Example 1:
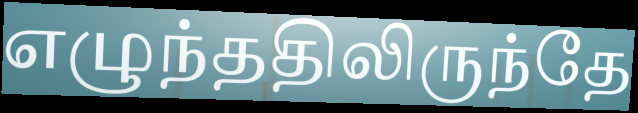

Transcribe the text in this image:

எழுந்ததிலிருந்தே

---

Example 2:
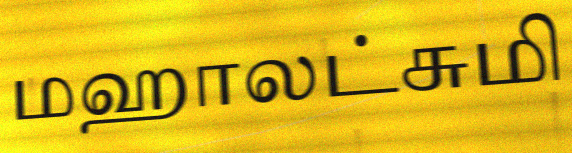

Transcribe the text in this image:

மஹாலட்சுமி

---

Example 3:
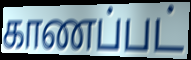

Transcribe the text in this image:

காணப்பட்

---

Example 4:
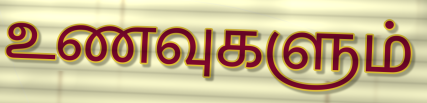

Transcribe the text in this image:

உணவுகளும்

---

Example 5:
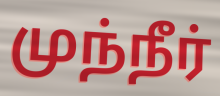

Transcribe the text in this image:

முந்நீர்